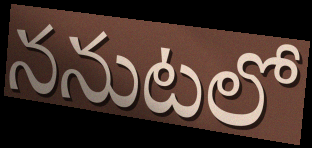
ననుటలో